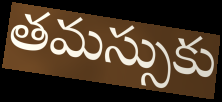
తమస్సుకు